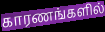
காரணங்களில்